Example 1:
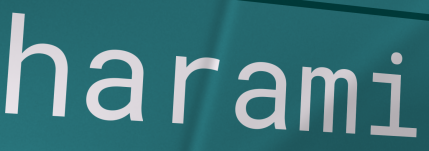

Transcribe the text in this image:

harami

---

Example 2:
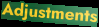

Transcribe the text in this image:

Adjustments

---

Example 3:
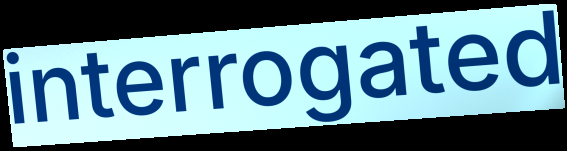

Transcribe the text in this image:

interrogated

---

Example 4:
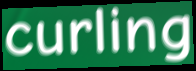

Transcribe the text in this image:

curling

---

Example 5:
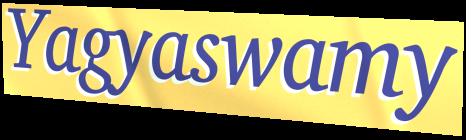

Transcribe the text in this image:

Yagyaswamy